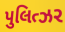
પુલિત્ઝર